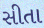
સીતા